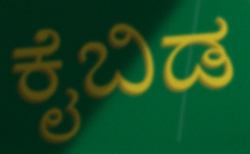
ಕೈಬಿಡ